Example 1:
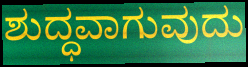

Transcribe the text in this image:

ಶುದ್ಧವಾಗುವುದು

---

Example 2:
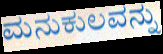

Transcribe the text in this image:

ಮನುಕುಲವನ್ನು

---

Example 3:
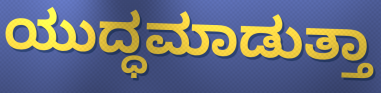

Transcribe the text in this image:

ಯುದ್ಧಮಾಡುತ್ತಾ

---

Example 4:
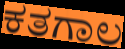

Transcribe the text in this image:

ಕತಗಾಲ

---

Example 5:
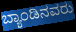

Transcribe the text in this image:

ಬ್ಯಾಂಡಿನವರು